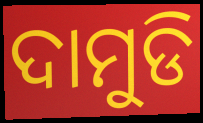
ଦାମୁଡି